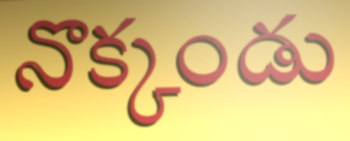
నొక్కండు